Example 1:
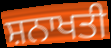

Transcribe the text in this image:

ਸ਼ਨਾਖਤੀ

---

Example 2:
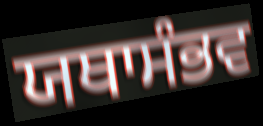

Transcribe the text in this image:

ਯਥਾਸੰਭਵ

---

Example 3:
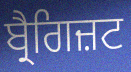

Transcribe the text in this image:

ਬ੍ਰੈਗਿਜ਼ਟ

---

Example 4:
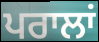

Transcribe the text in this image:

ਪਰਾਲਾਂ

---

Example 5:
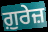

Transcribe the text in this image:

ਗ਼ੁਰੇਜ਼